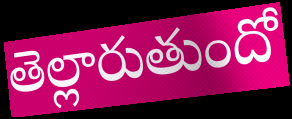
తెల్లారుతుందో